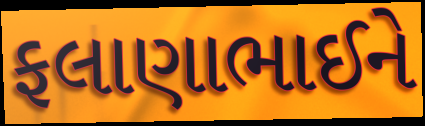
ફલાણાભાઈને